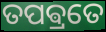
ତପଵ୍ରତେ